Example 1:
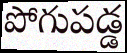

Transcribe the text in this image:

పోగుపడ్డ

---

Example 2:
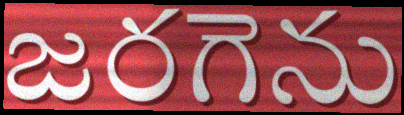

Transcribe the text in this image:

జరగెను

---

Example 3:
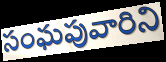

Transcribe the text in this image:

సంఘపువారిని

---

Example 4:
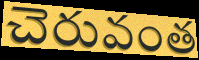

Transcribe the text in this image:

చెరువంత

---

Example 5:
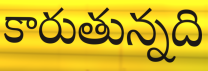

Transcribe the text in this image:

కారుతున్నది